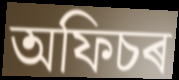
অফিচৰ